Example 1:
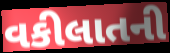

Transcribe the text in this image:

વકીલાતની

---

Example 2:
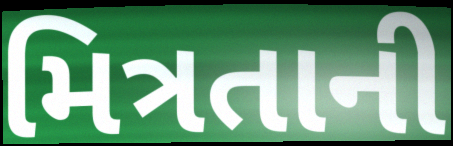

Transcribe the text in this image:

મિત્રતાની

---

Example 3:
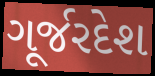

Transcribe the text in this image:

ગૂર્જરદેશ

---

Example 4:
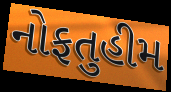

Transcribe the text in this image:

નોફતુહીમ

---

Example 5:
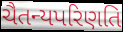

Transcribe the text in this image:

ચૈતન્યપરિણતિ